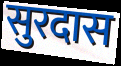
सुरदास